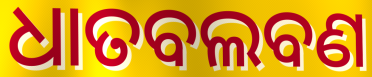
ଧାତବଲବଣ